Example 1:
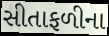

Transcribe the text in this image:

સીતાફળીના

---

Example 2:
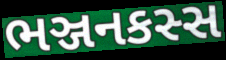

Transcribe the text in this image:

ભઞ્જનકસ્સ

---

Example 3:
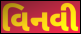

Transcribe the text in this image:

વિનવી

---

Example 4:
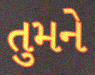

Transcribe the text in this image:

તુમને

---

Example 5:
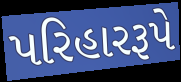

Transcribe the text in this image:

પરિહારરૂપે